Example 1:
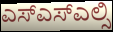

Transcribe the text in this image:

ಎಸ್ಎಸ್ಎಲ್ಸಿ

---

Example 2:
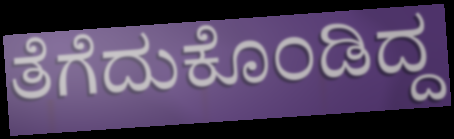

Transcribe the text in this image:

ತೆಗೆದುಕೊಂಡಿದ್ದ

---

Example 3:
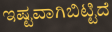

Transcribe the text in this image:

ಇಷ್ಟವಾಗಿಬಿಟ್ಟಿದೆ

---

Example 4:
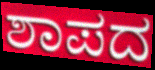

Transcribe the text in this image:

ಶಾಪದ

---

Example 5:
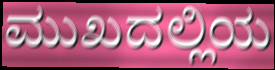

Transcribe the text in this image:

ಮುಖದಲ್ಲಿಯ